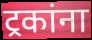
ट्रकांना